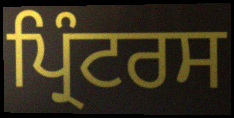
ਪ੍ਰਿੰਟਰਸ